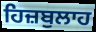
ਹਿਜ਼ਬੁਲਾਹ